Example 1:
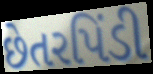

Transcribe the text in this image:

છેતરપિંડી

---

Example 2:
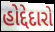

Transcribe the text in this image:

હોદ્દેદારો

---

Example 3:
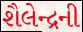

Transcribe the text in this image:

શૈલેન્દ્રની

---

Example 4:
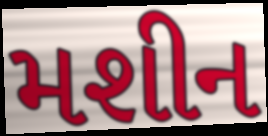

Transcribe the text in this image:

મશીન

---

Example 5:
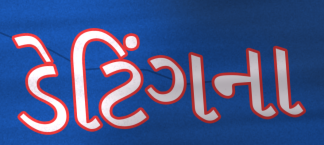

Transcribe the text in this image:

ડેટિંગના